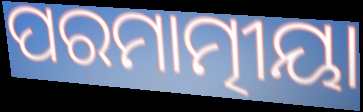
ପରମାତ୍ମୀୟା